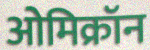
ओमिक्रॉन